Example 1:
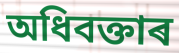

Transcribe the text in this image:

অধিবক্তাৰ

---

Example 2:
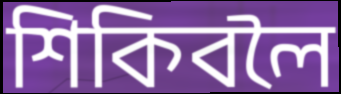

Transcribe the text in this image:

শিকিবলৈ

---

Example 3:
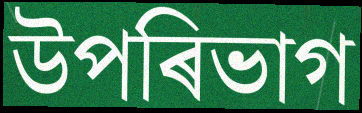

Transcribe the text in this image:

উপৰিভাগ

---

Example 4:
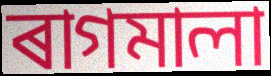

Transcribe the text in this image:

ৰাগমালা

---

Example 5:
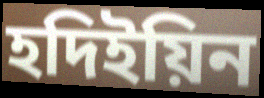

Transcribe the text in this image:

হদিইয়িন